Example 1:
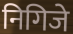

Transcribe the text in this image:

निगिजे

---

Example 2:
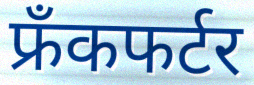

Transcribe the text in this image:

फ्रँकफर्टर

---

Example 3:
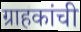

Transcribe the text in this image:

ग्राहकांची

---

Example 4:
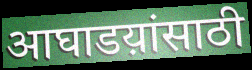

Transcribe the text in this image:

आघाडय़ांसाठी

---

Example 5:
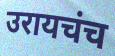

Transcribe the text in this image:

उरायचंच